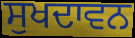
ਸੁਖਦਾਵਨ